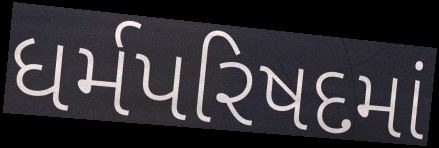
ધર્મપરિષદમાં